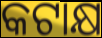
କଟାକ୍ଷ